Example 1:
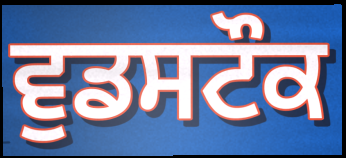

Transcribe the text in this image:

ਵੁਡਸਟੌਕ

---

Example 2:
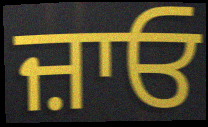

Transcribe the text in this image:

ਜ਼ਾਓ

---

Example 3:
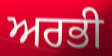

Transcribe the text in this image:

ਅਰਭੀ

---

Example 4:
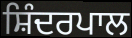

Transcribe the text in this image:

ਸ਼ਿੰਦਰਪਾਲ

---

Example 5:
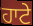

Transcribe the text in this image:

ਹਾਟੇ